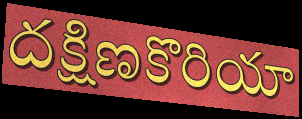
దక్షిణకొరియా